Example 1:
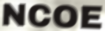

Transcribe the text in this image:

NCOE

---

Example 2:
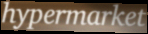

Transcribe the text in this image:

hypermarket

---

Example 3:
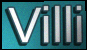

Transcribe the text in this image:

Villi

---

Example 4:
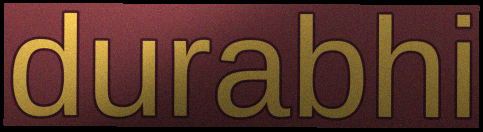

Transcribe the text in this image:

durabhi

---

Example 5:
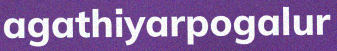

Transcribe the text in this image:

agathiyarpogalur